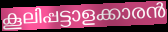
കൂലിപ്പട്ടാളക്കാരൻ